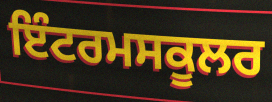
ਇੰਟਰਮਸਕੂਲਰ